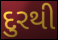
દુરથી